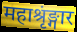
महाश्रृंङ्गार